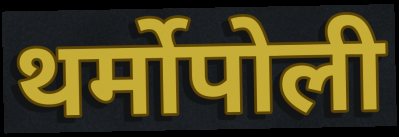
थर्मोपोली